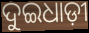
ଦୁଇଧାଡ଼ୀ